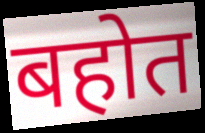
बहोत